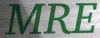
MRE